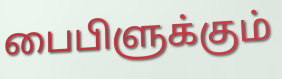
பைபிளுக்கும்